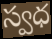
స్వధ